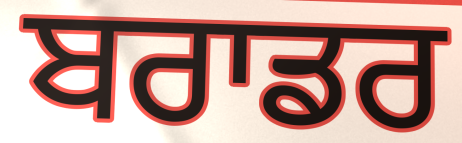
ਬਰਾਡਰ